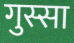
गुस्सा